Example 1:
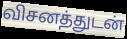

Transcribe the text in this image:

விசனத்துடன்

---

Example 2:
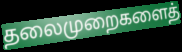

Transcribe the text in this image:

தலைமுறைகளைத்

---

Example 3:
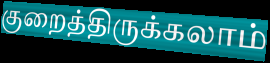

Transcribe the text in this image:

குறைத்திருக்கலாம்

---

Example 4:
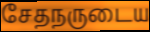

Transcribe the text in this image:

சேதநருடைய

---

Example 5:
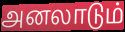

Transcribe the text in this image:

அனலாடும்